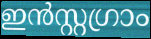
ഇൻസ്റ്റഗ്രാം